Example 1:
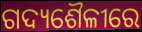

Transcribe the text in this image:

ଗଦ୍ୟଶୈଳୀରେ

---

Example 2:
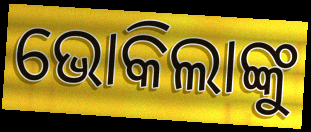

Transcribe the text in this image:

ଭୋକିଲାଙ୍କୁ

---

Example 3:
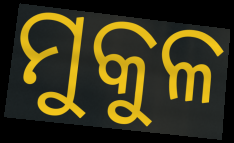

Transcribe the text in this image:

ମୁକୁଳ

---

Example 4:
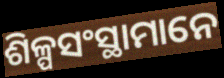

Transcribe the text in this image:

ଶିଳ୍ପସଂସ୍ଥାମାନେ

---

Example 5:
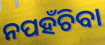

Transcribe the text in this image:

ନପହଁଚିବା